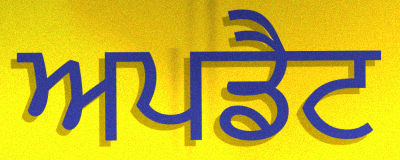
ਅਪਡੈਟ